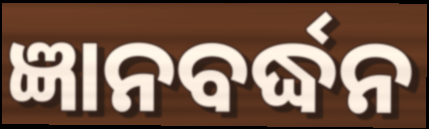
ଜ୍ଞାନବର୍ଦ୍ଧନ